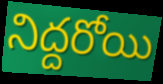
నిద్దరోయి